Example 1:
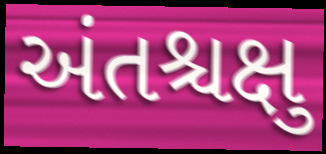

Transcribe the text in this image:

અંતશ્ચક્ષુ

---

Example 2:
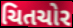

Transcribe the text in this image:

ચિતચોર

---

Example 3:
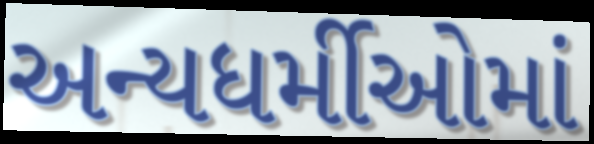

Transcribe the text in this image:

અન્યધર્મીઓમાં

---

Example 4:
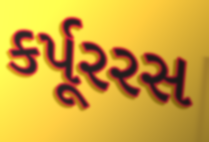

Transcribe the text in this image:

કર્પૂરરસ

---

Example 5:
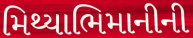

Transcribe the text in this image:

મિથ્યાભિમાનીની